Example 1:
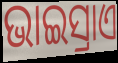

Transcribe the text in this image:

ଭାଇସ୍ରାଏ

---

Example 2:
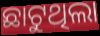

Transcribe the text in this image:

ଛାଟୁଥିଲା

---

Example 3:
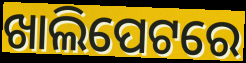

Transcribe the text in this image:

ଖାଲିପେଟରେ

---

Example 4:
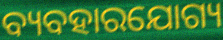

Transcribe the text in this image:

ବ୍ୟବହାରଯୋଗ୍ୟ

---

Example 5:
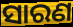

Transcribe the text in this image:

ସାରଣ